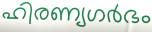
ഹിരണ്യഗർഭം